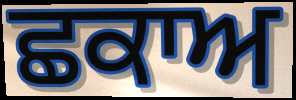
ਛਕਾਅ